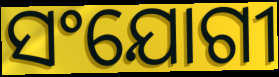
ସଂଯୋଗୀ